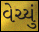
વેચ્યું